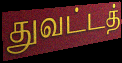
துவட்டத்